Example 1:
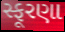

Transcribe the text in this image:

સ્ફૂરણા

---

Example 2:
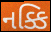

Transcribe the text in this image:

નક્કિ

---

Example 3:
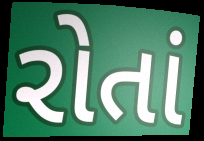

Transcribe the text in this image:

રોતાં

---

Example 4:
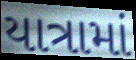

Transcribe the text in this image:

યાત્રામાં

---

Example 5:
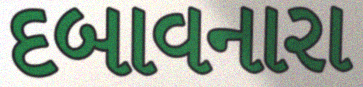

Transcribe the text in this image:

દબાવનારા